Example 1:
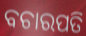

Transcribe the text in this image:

ବଚାରପତି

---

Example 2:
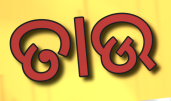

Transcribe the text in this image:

ତାଉ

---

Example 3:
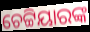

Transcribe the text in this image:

ଚେଟ୍ଟିୟାରଙ୍କ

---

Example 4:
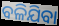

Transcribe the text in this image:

ବଳିଯିବା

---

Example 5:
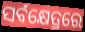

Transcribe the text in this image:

ସର୍ବକ୍ଷେତ୍ରରେ